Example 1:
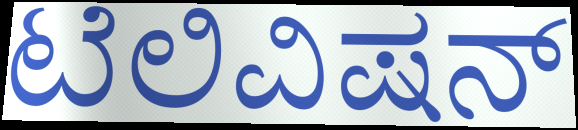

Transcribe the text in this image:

ಟೆಲಿವಿಷನ್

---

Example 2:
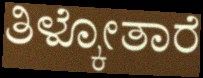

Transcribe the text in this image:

ತಿಳ್ಕೋತಾರೆ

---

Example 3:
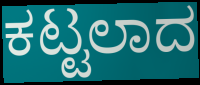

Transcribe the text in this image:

ಕಟ್ಟಲಾದ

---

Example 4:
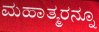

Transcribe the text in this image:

ಮಹಾತ್ಮರನ್ನೂ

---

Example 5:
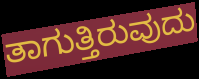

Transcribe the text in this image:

ತಾಗುತ್ತಿರುವುದು